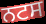
ਨਟਸ